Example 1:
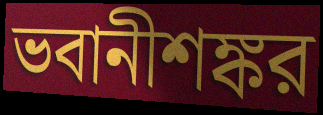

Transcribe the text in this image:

ভবানীশঙ্কর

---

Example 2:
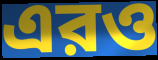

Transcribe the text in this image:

এরও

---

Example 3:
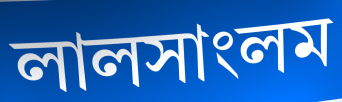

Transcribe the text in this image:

লালসাংলম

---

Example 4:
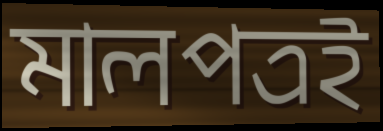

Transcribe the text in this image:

মালপত্রই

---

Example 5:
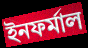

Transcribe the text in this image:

ইনফর্মাল